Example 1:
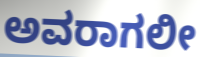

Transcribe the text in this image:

ಅವರಾಗಲೀ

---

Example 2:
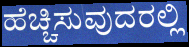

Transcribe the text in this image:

ಹೆಚ್ಚಿಸುವುದರಲ್ಲಿ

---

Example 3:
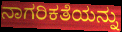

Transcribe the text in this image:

ನಾಗರಿಕತೆಯನ್ನು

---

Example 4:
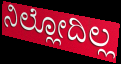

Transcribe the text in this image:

ನಿಲ್ಲೋದಿಲ್ಲ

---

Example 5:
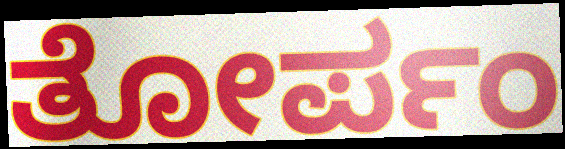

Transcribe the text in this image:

ತೋರ್ಪಂ